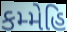
કમ્મેહિ